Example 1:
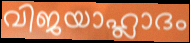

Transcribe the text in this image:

വിജയാഹ്ലാദം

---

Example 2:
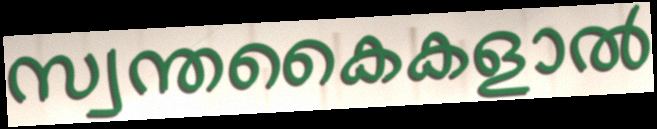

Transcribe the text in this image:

സ്വന്തകൈകളാൽ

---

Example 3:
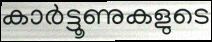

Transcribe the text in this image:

കാർട്ടൂണുകളുടെ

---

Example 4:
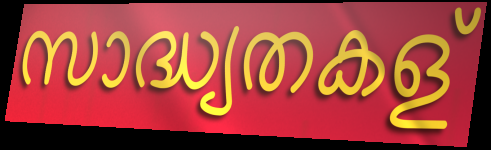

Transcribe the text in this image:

സാദ്ധ്യതകള്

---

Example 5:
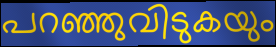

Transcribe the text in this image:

പറഞ്ഞുവിടുകയും